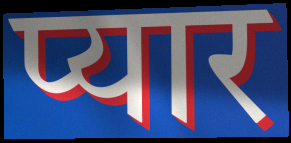
प्‍यार